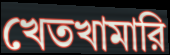
খেতখামারি